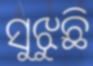
ସୁଝୁଛି